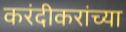
करंदीकरांच्या